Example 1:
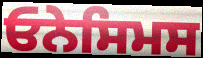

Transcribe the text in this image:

ਓਨੇਸਿਮਸ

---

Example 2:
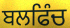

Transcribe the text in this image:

ਬਲਫਿੰਚ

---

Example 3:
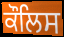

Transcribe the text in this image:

ਕੌਲਿਸ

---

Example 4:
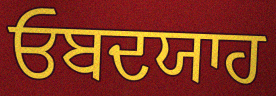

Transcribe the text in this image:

ਓਬਦਯਾਹ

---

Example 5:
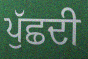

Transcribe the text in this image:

ਪੁੱਛਦੀ